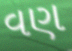
વણ